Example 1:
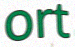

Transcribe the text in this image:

ort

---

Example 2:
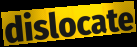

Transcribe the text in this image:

dislocate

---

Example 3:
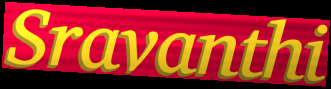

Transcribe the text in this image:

Sravanthi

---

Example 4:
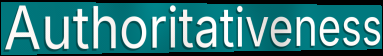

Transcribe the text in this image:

Authoritativeness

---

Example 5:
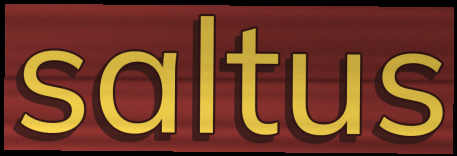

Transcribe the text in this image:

saltus